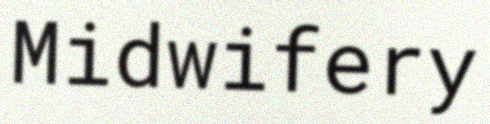
Midwifery